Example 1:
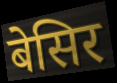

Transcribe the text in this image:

बेसिर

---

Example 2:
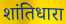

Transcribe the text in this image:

शांतिधारा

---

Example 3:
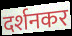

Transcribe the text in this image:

दर्शनकर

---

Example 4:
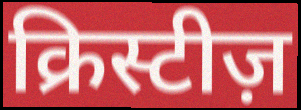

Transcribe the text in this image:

क्रिस्टीज़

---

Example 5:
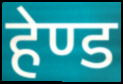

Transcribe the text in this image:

हेण्ड